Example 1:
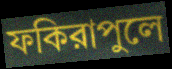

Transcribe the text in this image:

ফকিরাপুলে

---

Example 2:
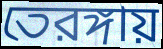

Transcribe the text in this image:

তেরঙ্গায়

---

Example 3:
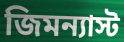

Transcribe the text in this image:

জিমন্যাস্ট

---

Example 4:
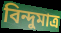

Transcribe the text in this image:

বিন্দুমাত্র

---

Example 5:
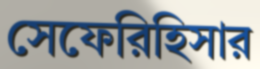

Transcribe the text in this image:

সেফেরিহিসার